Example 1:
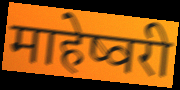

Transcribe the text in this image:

माहेष्वरी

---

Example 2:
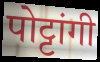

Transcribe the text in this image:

पोट्टांगी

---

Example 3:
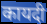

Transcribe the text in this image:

कायदी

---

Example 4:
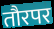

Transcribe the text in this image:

तौरपर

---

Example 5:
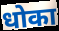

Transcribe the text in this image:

धोका